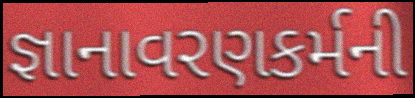
જ્ઞાનાવરણકર્મની